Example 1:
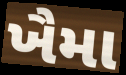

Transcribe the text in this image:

ખૈમા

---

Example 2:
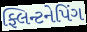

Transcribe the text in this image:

ફ્લિન્ટનેપિંગ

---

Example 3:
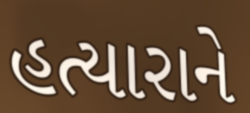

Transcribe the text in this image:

હત્યારાને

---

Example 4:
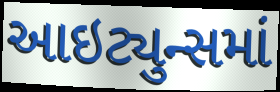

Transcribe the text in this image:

આઇટ્યુન્સમાં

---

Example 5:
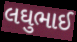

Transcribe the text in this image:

લઘુભાઈ